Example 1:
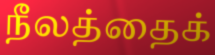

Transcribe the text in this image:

நீலத்தைக்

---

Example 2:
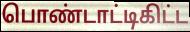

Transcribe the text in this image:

பொண்டாட்டிகிட்ட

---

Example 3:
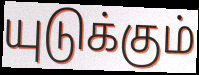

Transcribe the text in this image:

யுடுக்கும்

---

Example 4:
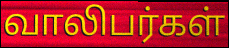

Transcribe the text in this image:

வாலிபர்கள்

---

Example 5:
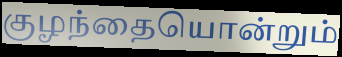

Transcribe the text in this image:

குழந்தையொன்றும்